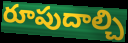
రూపుదాల్చి